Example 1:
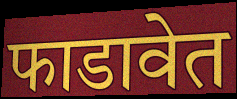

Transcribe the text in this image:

फाडावेत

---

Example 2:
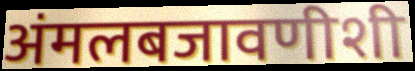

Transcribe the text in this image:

अंमलबजावणीशी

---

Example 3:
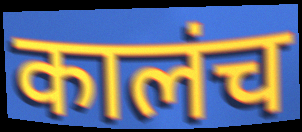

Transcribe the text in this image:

कालंच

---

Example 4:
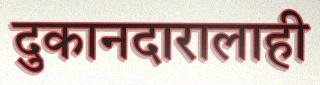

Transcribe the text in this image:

दुकानदारालाही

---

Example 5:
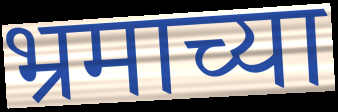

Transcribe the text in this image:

भ्रमाच्या